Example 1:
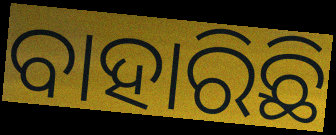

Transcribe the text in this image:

ବାହାରିଛି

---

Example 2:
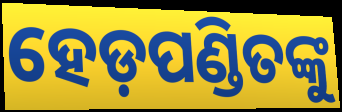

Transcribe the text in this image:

ହେଡ଼ପଣ୍ଡିତଙ୍କୁ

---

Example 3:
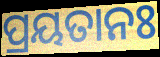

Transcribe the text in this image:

ପ୍ରୟତାନଃ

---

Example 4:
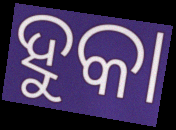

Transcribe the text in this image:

ହୁକା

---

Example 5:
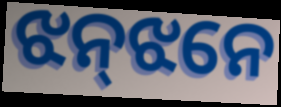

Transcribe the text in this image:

ଝନ୍‌ଝନେ